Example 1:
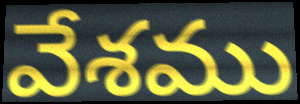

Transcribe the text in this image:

వేశము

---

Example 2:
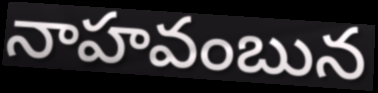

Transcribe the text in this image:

నాహవంబున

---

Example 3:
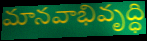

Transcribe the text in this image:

మానవాభివృద్ధి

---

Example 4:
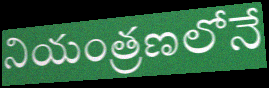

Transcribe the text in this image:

నియంత్రణలోనే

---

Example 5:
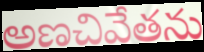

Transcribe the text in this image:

అణచివేతను